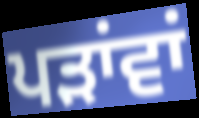
ਪੜਾਂਵਾਂ